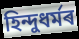
হিন্দুধৰ্মৰ